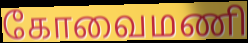
கோவைமணி